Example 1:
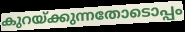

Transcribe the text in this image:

കുറയ്ക്കുന്നതോടൊപ്പം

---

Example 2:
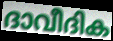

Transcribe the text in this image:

ദാവീദിക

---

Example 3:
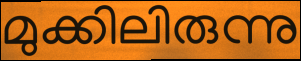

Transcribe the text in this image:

മുക്കിലിരുന്നു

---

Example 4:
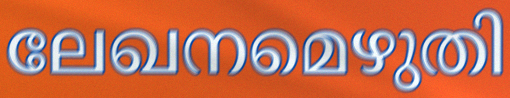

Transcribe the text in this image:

ലേഖനമെഴുതി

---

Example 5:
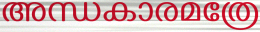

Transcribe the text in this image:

അന്ധകാരമത്രേ